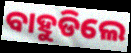
ବାହୁଡିଲେ